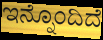
ಇನ್ನೊಂದಿದೆ